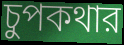
চুপকথার